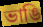
ভাঙি